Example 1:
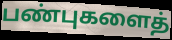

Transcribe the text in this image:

பண்புகளைத்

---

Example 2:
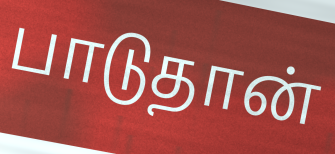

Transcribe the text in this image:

பாடுதான்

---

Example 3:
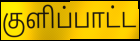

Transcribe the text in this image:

குளிப்பாட்ட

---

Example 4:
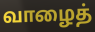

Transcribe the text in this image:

வாழைத்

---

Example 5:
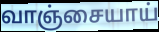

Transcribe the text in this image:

வாஞ்சையாய்